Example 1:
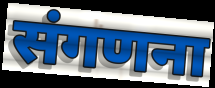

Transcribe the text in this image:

संगणना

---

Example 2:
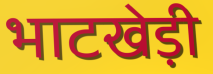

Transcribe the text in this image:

भाटखेड़ी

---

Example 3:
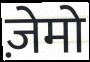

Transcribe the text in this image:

ज़ेमो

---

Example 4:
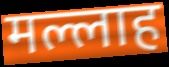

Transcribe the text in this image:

मल्लाह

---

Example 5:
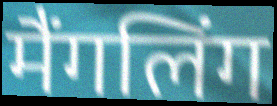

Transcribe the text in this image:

मैंगलिंग